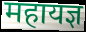
महायज्ञ